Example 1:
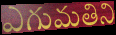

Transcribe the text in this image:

ఎగుమతిని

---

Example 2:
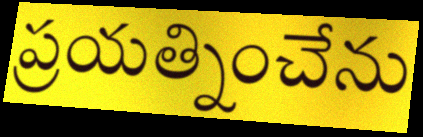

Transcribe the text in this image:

ప్రయత్నించేను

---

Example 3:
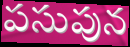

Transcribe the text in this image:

పసుపున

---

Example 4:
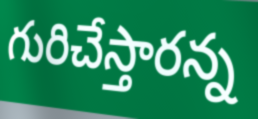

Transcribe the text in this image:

గురిచేస్తారన్న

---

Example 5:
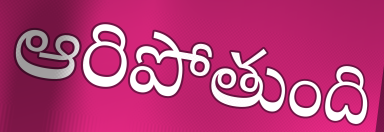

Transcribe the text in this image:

ఆరిపోతుంది